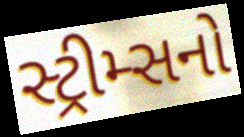
સ્ટ્રીમ્સનો